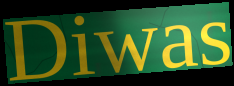
Diwas